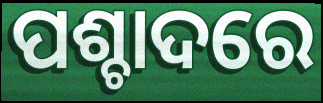
ପଶ୍ଚାଦରେ